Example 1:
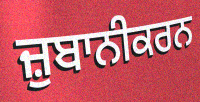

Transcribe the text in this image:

ਜ਼ੁਬਾਨੀਕਰਨ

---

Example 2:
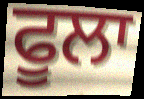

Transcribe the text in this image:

ਫੂਲਾ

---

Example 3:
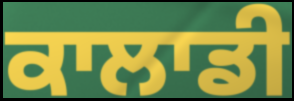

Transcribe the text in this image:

ਕਾਲਾਡੀ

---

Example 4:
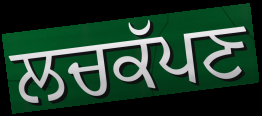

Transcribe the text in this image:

ਲਚਕੱਪਣ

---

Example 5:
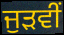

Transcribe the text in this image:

ਜੁੜਵੀਂ